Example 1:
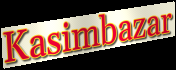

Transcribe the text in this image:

Kasimbazar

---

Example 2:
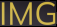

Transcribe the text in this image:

IMG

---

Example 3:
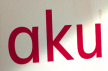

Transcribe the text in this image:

aku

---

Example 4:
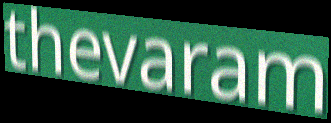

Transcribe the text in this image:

thevaram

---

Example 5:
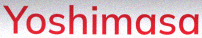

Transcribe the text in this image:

Yoshimasa